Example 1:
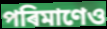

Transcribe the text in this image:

পৰিমাণেও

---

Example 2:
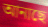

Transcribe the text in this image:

আনাছে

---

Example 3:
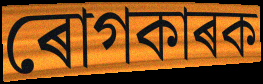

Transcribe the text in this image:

ৰোগকাৰক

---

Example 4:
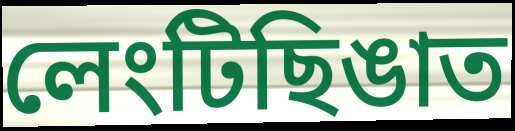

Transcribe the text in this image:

লেংটিছিঙাত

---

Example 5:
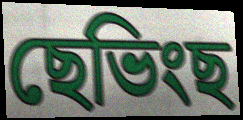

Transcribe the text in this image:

ছেভিংছ